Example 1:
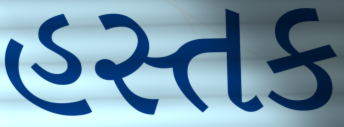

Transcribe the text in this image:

હસ્તક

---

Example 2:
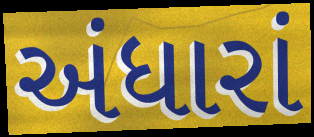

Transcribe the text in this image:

અંધારાં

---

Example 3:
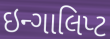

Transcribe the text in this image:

ઇન્ગાલિપ્ટ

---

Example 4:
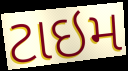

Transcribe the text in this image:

ટાઇમ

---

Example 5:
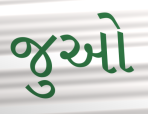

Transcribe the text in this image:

જુઓ